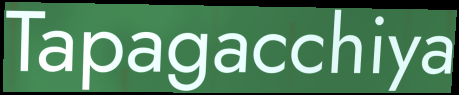
Tapagacchiya